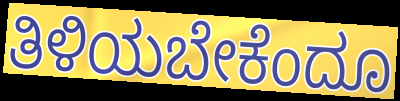
ತಿಳಿಯಬೇಕೆಂದೂ